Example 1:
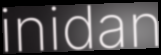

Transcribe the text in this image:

inidan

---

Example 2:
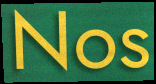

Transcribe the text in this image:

Nos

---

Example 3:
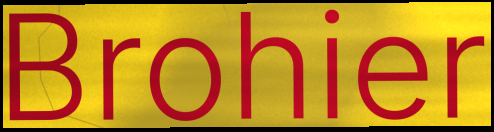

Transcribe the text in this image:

Brohier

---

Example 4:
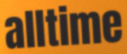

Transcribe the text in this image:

alltime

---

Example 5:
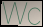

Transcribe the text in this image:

Wc